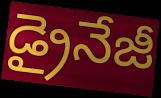
డ్రైనేజీ